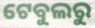
ଟେବୁଲରୁ